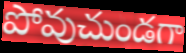
పోవుచుండగా